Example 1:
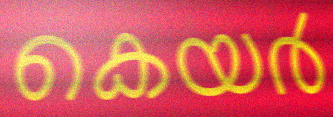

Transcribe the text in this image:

കെയർ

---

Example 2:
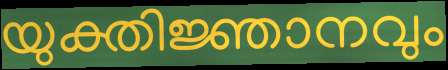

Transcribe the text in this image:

യുക്തിജ്ഞാനവും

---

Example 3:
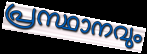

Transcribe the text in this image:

പ്രസ്ഥാനവും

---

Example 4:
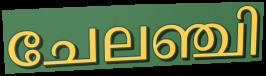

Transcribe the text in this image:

ചേലഞ്ചി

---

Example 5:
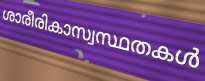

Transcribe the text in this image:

ശാരീരികാസ്വസ്ഥതകൾ